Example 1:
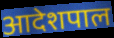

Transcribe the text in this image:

आदेशपाल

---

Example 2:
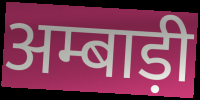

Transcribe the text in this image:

अम्बाड़ी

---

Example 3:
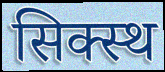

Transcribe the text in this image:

सिक्स्थ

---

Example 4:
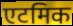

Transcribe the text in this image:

एटमिक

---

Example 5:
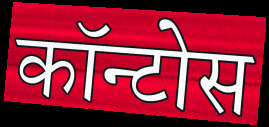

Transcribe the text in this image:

कॉन्टोस